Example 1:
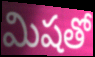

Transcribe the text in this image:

మిషతో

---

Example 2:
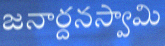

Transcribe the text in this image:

జనార్దనస్వామి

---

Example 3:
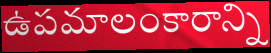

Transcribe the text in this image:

ఉపమాలంకారాన్ని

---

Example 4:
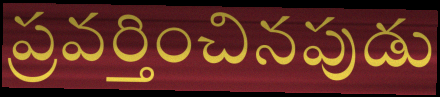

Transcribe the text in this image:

ప్రవర్తించినపుడు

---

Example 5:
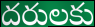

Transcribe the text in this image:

దరులకు